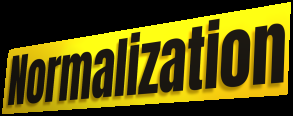
Normalization